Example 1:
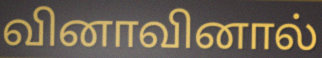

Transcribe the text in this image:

வினாவினால்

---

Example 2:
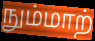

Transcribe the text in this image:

நும்மாற்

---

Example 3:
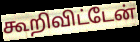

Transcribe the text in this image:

கூறிவிட்டேன்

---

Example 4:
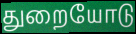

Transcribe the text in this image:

துறையோடு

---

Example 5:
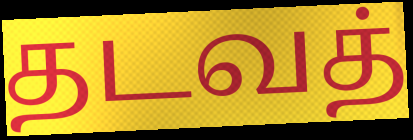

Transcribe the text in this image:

தடவத்